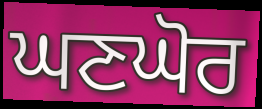
ਘਣਘੋਰ